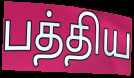
பத்திய